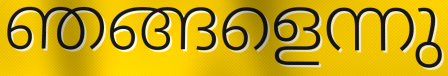
ഞങ്ങളെന്നു